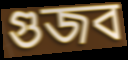
গুজব